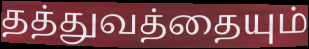
தத்துவத்தையும்